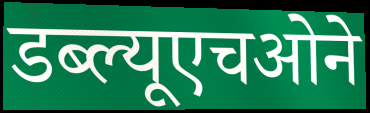
डब्ल्यूएचओने